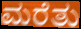
ಮರೆತು